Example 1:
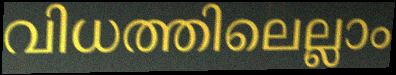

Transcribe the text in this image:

വിധത്തിലെല്ലാം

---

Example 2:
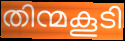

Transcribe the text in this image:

തിന്മകൂടി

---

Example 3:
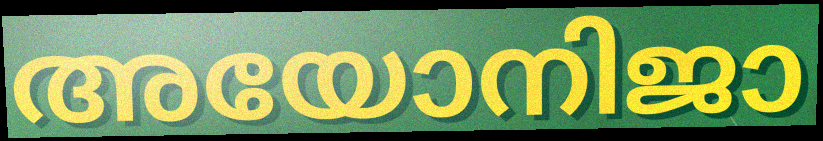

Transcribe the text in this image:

അയോനിജാ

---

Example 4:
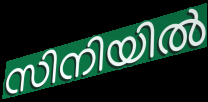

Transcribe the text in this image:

സിനിയിൽ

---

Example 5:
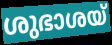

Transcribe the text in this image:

ശുഭാശയ്